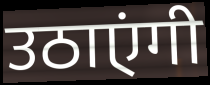
उठाएंगी